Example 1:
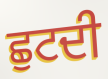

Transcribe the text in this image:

ਛੁਟਦੀ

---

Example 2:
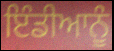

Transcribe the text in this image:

ਇੰਡੀਆਨੂੰ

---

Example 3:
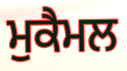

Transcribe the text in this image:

ਮੁਕੈਮਲ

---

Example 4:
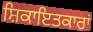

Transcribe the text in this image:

ਸ਼ਿਕਾਇਤਕਾਰਾਂ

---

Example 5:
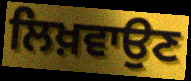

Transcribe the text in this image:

ਲਿਖ਼ਵਾਉਣ